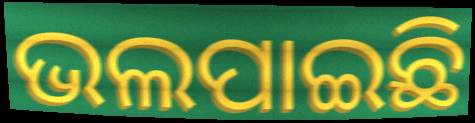
ଭଲପାଇଛି